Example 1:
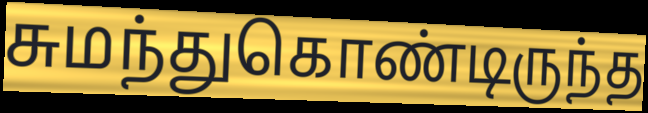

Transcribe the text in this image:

சுமந்துகொண்டிருந்த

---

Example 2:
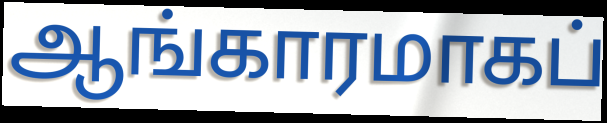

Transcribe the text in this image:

ஆங்காரமாகப்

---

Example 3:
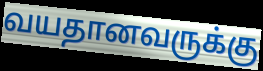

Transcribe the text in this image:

வயதானவருக்கு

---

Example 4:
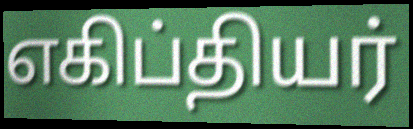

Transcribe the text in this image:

எகிப்தியர்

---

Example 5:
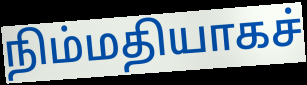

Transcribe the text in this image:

நிம்மதியாகச்